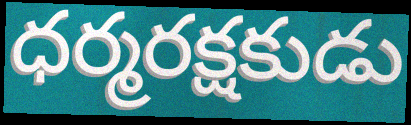
ధర్మరక్షకుడు